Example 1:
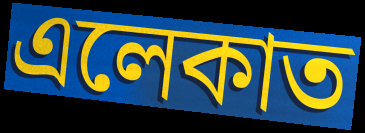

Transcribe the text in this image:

এলেকাত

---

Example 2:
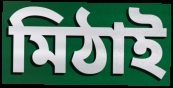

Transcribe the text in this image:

মিঠাই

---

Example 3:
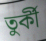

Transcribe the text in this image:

তুৰ্কী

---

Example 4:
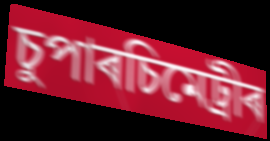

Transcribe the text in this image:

চুপাৰচিমেট্ৰীৰ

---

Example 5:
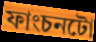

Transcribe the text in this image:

ফাংচনটো